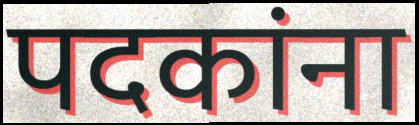
पदकांना